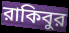
রাকিবুর